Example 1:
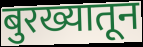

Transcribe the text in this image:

बुरख्यातून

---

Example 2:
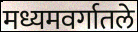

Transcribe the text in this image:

मध्यमवर्गातले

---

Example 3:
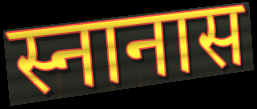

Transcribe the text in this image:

स्नानास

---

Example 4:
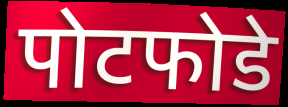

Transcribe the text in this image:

पोटफोडे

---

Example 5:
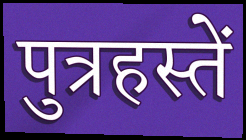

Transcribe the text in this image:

पुत्रहस्तें